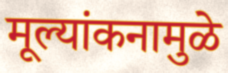
मूल्यांकनामुळे